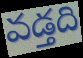
వడ్తది